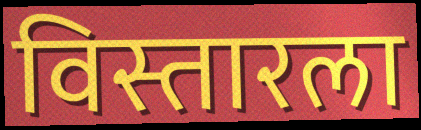
विस्तारला